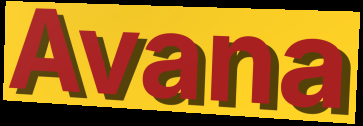
Avana